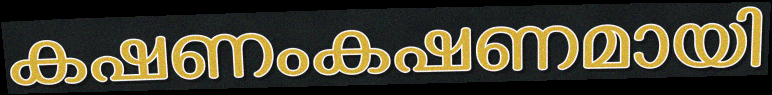
കഷണംകഷണമായി